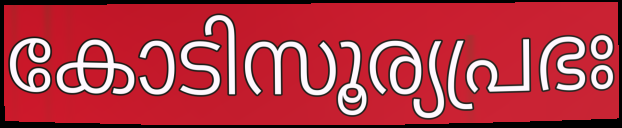
കോടിസൂര്യപ്രഭഃ